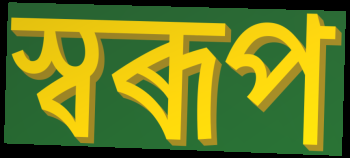
স্বৰূপ